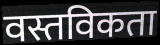
वस्तविकता